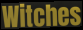
Witches